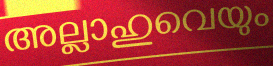
അല്ലാഹുവെയും